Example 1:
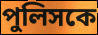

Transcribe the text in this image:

পুলিসকে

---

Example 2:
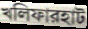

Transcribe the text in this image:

খলিফারহাট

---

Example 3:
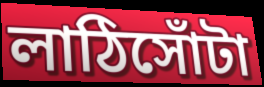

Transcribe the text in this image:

লাঠিসোঁটা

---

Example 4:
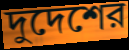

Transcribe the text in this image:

দুদেশের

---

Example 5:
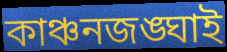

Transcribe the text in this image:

কাঞ্চনজঙ্ঘাই